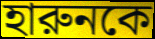
হারুনকে